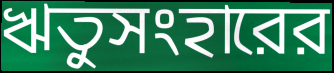
ঋতুসংহারের